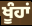
ਖੂੰਹਾਂ